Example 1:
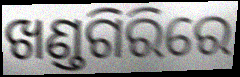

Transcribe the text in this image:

ଖଣ୍ଡଗିରିରେ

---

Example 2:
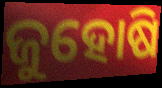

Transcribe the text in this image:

ଜୁହୋଷି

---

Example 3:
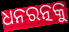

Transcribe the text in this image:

ଧନରତ୍ନକୁ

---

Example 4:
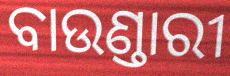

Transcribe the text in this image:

ବାଉଣ୍ଡାରୀ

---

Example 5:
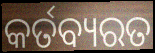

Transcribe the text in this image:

କର୍ତବ୍ୟରତ